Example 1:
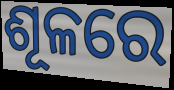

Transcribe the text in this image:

ଶୂଳରେ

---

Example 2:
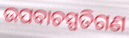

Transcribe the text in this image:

ଉପବାଚସ୍ପତିଗଣ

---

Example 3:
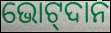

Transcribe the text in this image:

ଭୋଟ୍‌ଦାନ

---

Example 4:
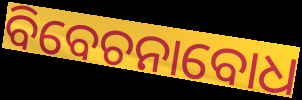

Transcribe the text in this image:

ବିବେଚନାବୋଧ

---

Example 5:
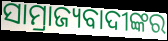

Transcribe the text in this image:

ସାମ୍ରାଜ୍ୟବାଦୀଙ୍କର